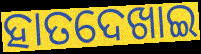
ହାତଦେଖାଇ